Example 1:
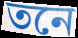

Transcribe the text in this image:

তনে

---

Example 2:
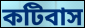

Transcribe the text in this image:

কটিবাস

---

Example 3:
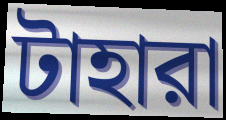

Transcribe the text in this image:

টাহারা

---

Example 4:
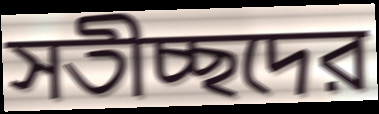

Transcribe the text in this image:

সতীচ্ছদের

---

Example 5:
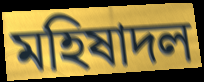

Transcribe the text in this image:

মহিষাদল